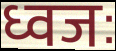
ध्वजः